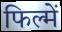
फिल्‍में